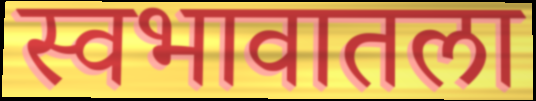
स्वभावातला